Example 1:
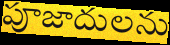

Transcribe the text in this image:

పూజాదులను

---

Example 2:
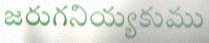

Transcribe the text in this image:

జరుగనియ్యకుము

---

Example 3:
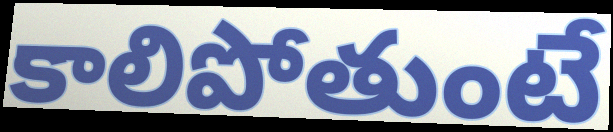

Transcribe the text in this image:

కాలిపోతుంటే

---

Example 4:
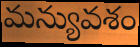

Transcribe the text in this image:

మన్యువశం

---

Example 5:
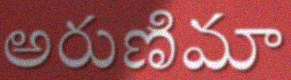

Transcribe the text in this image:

అరుణిమా